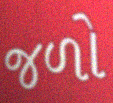
જળો